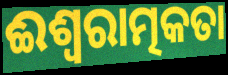
ଈଶ୍ଵରାତ୍ମକତା